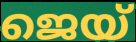
ജെയ്